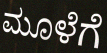
ಮೂಳೆಗೆ